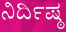
ನಿರ್ದಿಷ್ಠ